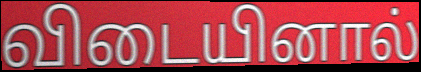
விடையினால்